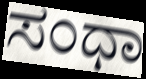
ಸಂಧಾ